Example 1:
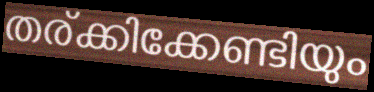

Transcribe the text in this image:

തര്ക്കിക്കേണ്ടിയും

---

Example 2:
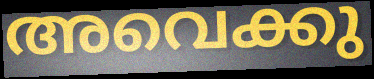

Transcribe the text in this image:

അവെക്കു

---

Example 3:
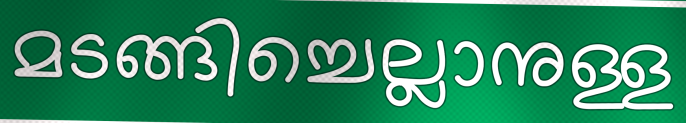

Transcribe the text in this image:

മടങ്ങിച്ചെല്ലാനുള്ള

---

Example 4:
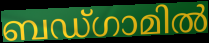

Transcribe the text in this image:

ബഡ്ഗാമിൽ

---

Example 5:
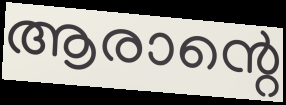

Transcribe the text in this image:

ആരാന്റെ